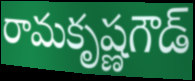
రామకృష్ణగౌడ్